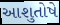
આશુતોષે